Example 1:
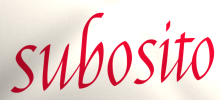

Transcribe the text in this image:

subosito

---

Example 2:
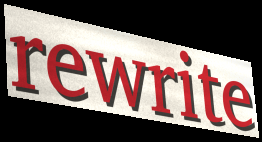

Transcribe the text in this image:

rewrite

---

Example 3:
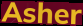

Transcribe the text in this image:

Asher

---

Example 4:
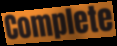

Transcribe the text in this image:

Complete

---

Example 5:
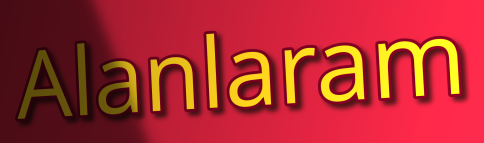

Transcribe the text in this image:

Alanlaram